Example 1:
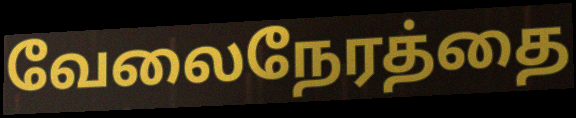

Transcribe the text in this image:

வேலைநேரத்தை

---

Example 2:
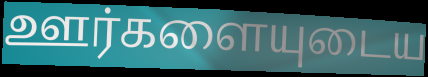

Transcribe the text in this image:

ஊர்களையுடைய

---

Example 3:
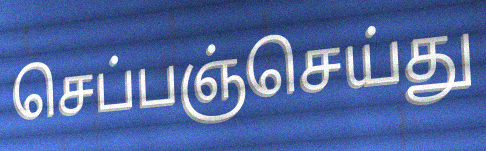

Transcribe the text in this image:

செப்பஞ்செய்து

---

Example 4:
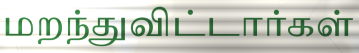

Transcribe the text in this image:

மறந்துவிட்டார்கள்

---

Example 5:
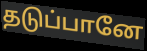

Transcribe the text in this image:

தடுப்பானே